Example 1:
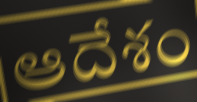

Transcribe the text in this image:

ఆదేశం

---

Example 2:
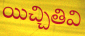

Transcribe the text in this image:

యిచ్చితివి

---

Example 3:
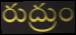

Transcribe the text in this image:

రుద్రుం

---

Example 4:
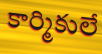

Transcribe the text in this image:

కార్మికులే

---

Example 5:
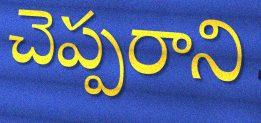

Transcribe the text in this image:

చెప్పరాని